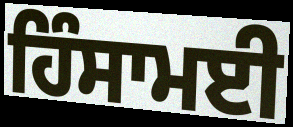
ਹਿੰਸਾਮਈ